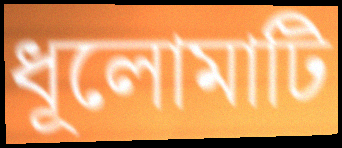
ধূলোমাটি